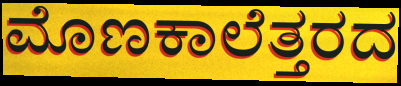
ಮೊಣಕಾಲೆತ್ತರದ